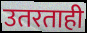
उतरताही